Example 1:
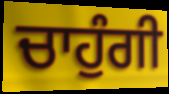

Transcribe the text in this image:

ਚਾਹੁੰਗੀ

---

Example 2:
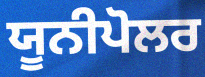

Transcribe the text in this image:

ਯੂਨੀਪੋਲਰ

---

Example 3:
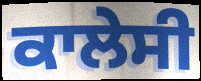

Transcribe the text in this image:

ਕਾਲੇਸੀ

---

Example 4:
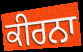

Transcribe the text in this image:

ਕੀਰਨਾ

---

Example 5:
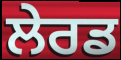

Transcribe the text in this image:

ਲੇਰਡ